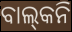
ବାଲ୍‍କନି